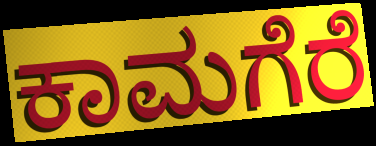
ಕಾಮಗೆರೆ